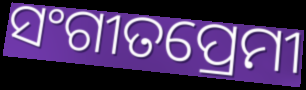
ସଂଗୀତପ୍ରେମୀ